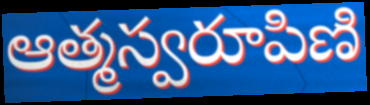
ఆత్మస్వరూపిణి